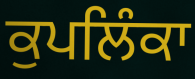
ਕੁਪਲਿੰਕਾ